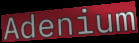
Adenium